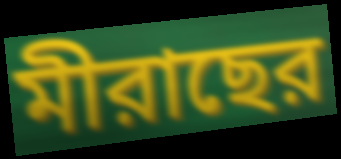
মীরাছের